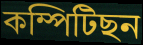
কম্পিটিছন